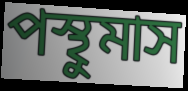
পস্থুমাস